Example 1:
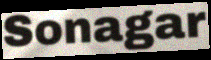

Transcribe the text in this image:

Sonagar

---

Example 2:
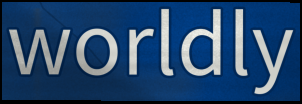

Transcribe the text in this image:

worldly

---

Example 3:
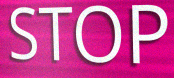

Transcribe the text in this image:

STOP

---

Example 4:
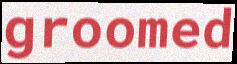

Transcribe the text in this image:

groomed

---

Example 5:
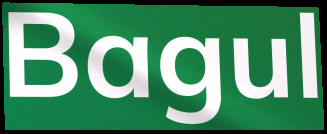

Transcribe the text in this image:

Bagul